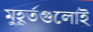
মুহূর্তগুলোই